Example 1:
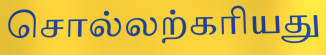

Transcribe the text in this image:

சொல்லற்கரியது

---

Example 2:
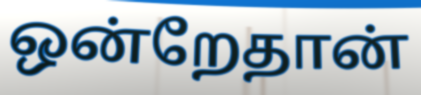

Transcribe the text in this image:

ஒன்றேதான்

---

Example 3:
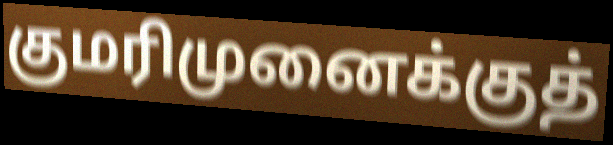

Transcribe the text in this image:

குமரிமுனைக்குத்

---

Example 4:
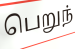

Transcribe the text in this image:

பெறுந்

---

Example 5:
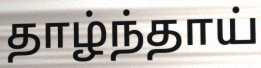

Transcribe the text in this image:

தாழ்ந்தாய்